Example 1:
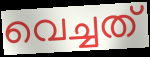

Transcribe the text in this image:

വെച്ചത്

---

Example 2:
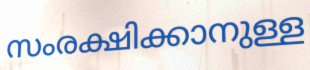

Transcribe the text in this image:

സംരക്ഷിക്കാനുള്ള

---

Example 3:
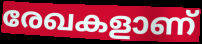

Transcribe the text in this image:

രേഖകളാണ്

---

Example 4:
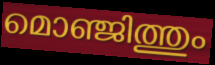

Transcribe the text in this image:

മൊഞ്ജിത്തും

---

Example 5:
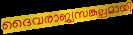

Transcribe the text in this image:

ദൈവരാജ്യസങ്കല്പമായി